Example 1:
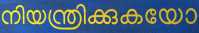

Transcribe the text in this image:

നിയന്ത്രിക്കുകയോ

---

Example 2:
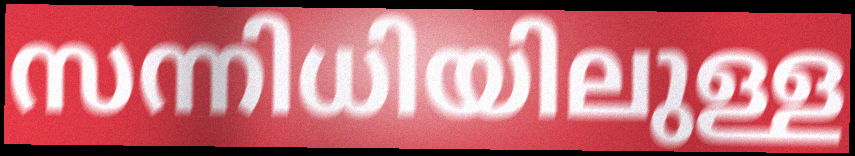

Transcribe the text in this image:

സന്നിധിയിലുള്ള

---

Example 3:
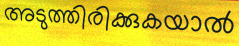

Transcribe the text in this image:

അടുത്തിരിക്കുകയാൽ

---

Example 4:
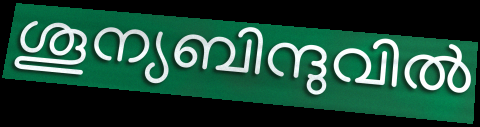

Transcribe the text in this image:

ശൂന്യബിന്ദുവിൽ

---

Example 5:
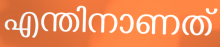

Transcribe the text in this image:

എന്തിനാണത്